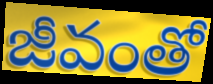
జీవంతో